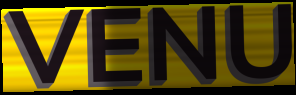
VENU